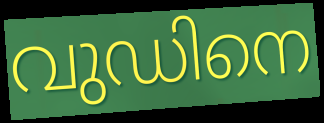
വുഡിനെ